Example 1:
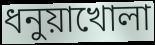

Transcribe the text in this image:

ধনুয়াখোলা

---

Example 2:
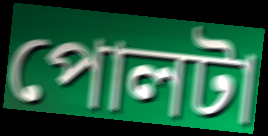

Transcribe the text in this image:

পোলটা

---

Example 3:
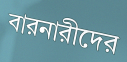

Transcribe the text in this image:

বারনারীদের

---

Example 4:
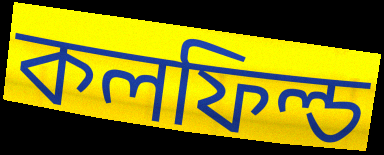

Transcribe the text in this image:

কলফিল্ড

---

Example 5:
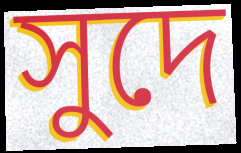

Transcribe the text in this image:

সুদে